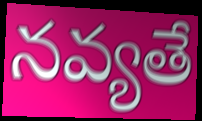
నవ్యతే